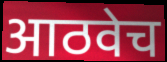
आठवेच